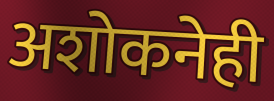
अशोकनेही